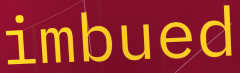
imbued